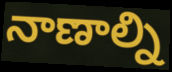
నాణాల్ని